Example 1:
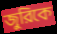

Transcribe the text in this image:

জুরিকে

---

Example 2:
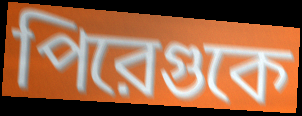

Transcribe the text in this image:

পিরেগুকে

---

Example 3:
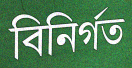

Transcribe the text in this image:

বিনির্গত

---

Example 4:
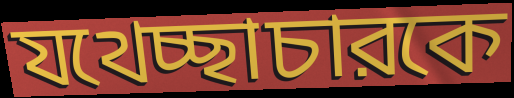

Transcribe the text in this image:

যথেচ্ছাচারকে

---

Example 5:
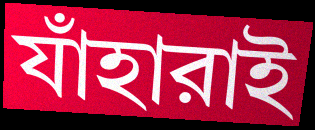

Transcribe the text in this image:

যাঁহারাই